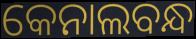
କେନାଲବନ୍ଧ